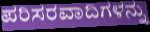
ಪರಿಸರವಾದಿಗಳನ್ನು